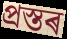
প্ৰস্তৰ